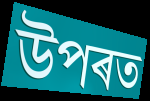
উপৰত